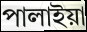
পালাইয়া